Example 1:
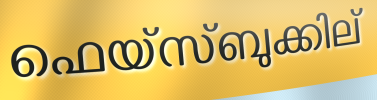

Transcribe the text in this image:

ഫെയ്സ്ബുക്കില്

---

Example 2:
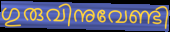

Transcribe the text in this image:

ഗുരുവിനുവേണ്ടി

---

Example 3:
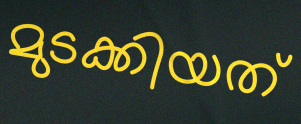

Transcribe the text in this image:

മുടക്കിയത്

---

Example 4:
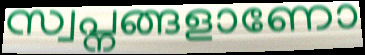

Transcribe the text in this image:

സ്വപ്നങ്ങളാണോ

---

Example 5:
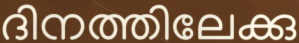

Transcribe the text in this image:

ദിനത്തിലേക്കു